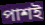
পাশই